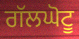
ਗੱਲਘੋਟੂ